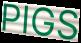
PIGS